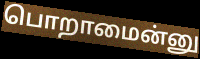
பொறாமைன்னு